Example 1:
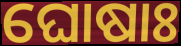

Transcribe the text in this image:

ଘୋଷାଃ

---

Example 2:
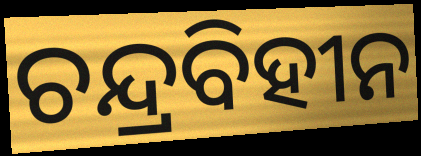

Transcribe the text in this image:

ଚନ୍ଦ୍ରବିହୀନ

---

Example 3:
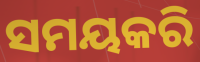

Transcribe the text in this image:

ସମୟକରି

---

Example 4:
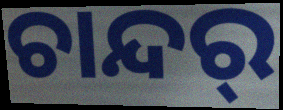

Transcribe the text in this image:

ଚାନ୍ଦର୍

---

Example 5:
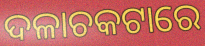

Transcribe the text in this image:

ଦଳାଚକଟାରେ